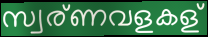
സ്വര്ണവളകള്